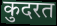
कुदरत